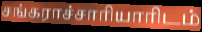
சங்கராச்சாரியாரிடம்